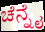
ಚೆನ್ನೈ